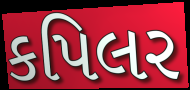
કપિલર